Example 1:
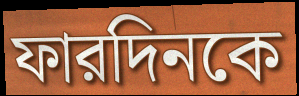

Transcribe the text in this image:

ফারদিনকে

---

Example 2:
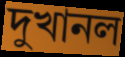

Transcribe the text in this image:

দুখানল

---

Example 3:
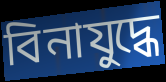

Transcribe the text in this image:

বিনাযুদ্ধে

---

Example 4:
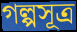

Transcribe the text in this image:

গল্পসূত্র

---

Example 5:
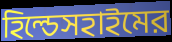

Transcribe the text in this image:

হিল্ডেসহাইমের